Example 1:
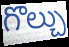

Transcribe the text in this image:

గొల్చు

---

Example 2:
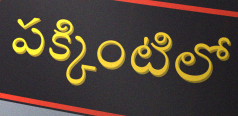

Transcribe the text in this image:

పక్కింటిలో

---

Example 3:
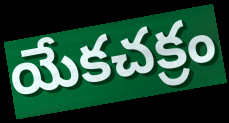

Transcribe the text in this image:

యేకచక్రం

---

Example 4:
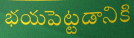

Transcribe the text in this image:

భయపెట్టడానికి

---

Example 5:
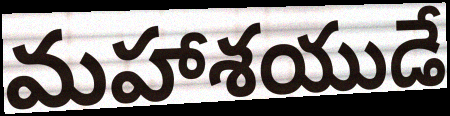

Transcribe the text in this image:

మహాశయుడే